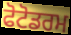
ਫੋਟੋਡਰਮ